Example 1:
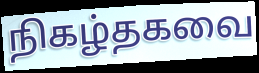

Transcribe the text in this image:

நிகழ்தகவை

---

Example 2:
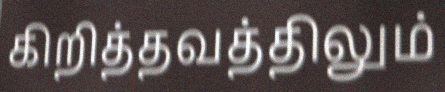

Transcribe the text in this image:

கிறித்தவத்திலும்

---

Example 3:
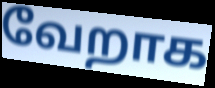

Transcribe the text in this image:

வேறாக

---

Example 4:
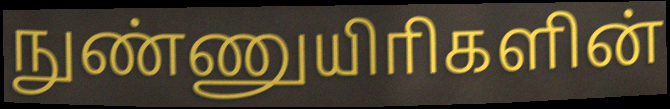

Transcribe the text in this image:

நுண்ணுயிரிகளின்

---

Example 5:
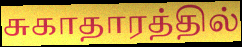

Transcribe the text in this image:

சுகாதாரத்தில்